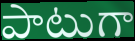
పాటుగా